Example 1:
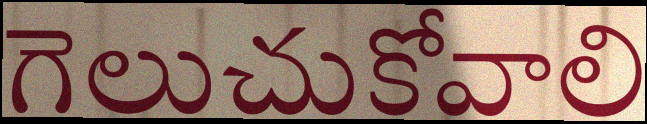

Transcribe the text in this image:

గెలుచుకోవాలి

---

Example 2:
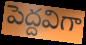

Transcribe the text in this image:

పెద్దవిగా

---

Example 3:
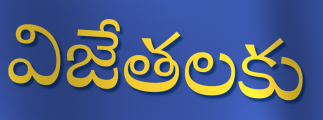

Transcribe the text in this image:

విజేతలకు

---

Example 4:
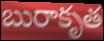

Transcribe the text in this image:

బురాకృత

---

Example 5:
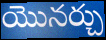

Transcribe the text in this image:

యొనర్చు